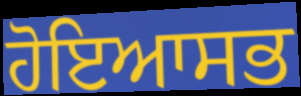
ਹੋਇਆਸਭ